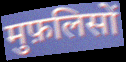
मुफ़लिसों